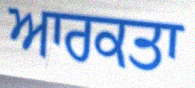
ਆਰਕਤਾ